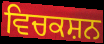
ਵਿਚਕਸ਼ਨ